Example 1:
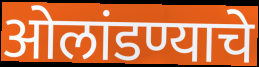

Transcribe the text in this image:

ओलांडण्याचे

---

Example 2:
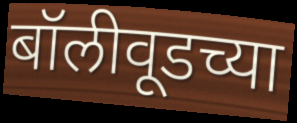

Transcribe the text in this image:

बॉलीवूडच्या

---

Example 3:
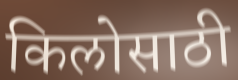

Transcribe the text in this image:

किलोसाठी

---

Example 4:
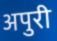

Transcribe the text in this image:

अपुरी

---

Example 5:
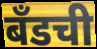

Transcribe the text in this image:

बँडची